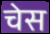
चेस